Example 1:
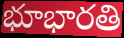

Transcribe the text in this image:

భూభారతి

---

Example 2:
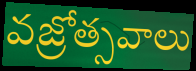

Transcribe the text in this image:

వజ్రోత్సవాలు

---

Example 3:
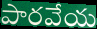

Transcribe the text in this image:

పారవేయ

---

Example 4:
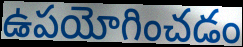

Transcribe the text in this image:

ఉపయోగించడం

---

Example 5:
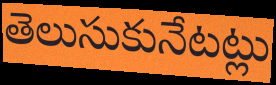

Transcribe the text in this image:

తెలుసుకునేటట్లు